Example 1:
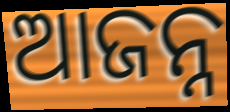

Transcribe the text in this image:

ଆଜନ୍ନ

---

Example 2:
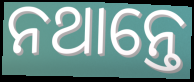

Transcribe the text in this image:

ନଥାନ୍ତେ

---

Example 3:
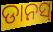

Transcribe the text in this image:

ଡାନସ୍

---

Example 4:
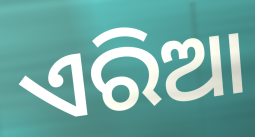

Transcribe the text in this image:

ଏରିଆ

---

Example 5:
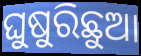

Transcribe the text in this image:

ଘୁଷୁରିଛୁଆ